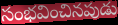
సంభవించినపుడు